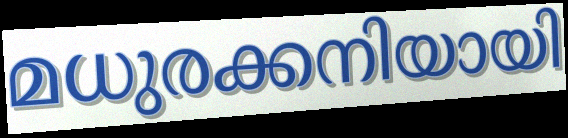
മധുരക്കനിയായി